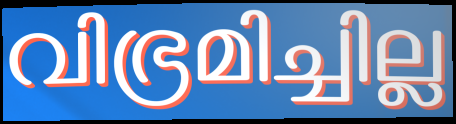
വിഭ്രമിച്ചില്ല